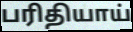
பரிதியாய்